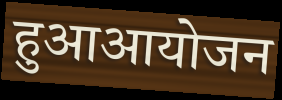
हुआआयोजन